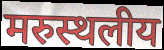
मरुस्थलीय